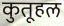
कुतूहल